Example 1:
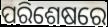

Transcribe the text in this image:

ପରିଶେଷରେ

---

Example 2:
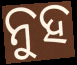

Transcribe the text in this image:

ନୁହ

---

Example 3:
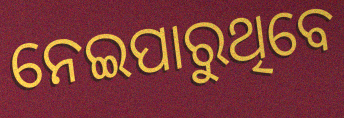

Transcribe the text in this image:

ନେଇପାରୁଥିବେ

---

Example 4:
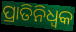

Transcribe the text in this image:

ପ୍ରାତିନିଧ୍ଵକ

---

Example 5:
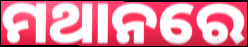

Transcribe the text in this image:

ମଥାନରେ